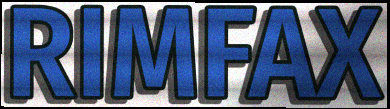
RIMFAX